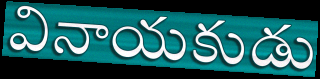
వినాయకుడు